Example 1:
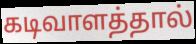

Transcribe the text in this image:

கடிவாளத்தால்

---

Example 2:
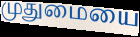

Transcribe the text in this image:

முதுமையை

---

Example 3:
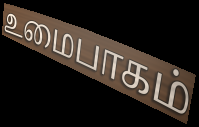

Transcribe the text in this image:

உமைபாகம்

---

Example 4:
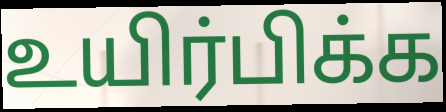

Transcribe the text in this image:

உயிர்பிக்க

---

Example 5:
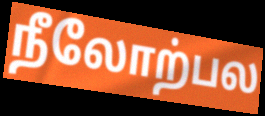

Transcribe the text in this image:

நீலோற்பல